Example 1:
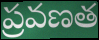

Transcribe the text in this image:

ప్రవణత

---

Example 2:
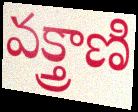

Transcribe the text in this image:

వక్త్రాణి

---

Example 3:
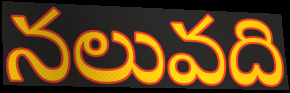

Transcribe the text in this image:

నలువది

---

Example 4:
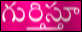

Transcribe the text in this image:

గుర్తిస్తూ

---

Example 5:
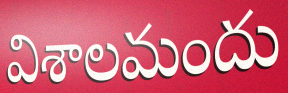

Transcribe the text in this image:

విశాలమందు